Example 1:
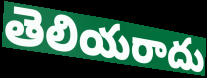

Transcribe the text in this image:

తెలియరాదు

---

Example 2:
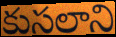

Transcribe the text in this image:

కుసలాని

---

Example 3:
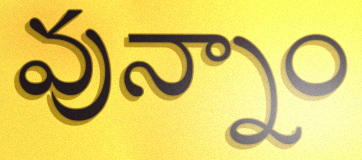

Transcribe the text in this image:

వున్నాం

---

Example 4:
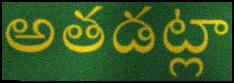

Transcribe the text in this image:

అతడట్లా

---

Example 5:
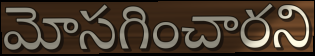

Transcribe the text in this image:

మోసగించారని